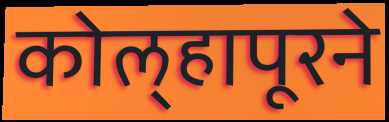
कोल्हापूरने